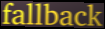
fallback